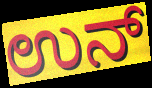
ಉನ್